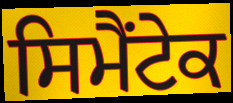
ਸਿਮੈਂਟੇਕ